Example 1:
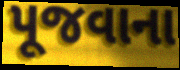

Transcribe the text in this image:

પૂજવાના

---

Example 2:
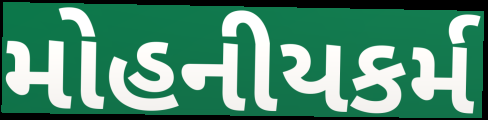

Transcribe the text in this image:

મોહનીયકર્મ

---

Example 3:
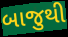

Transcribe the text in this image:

બાજુથી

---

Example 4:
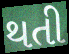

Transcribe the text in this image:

થતી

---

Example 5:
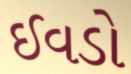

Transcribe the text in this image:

ઈવડો